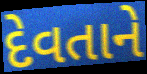
દેવતાને